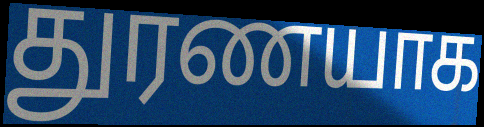
துரணயாக